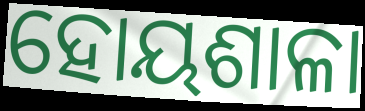
ହୋୟଶାଳା